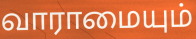
வாராமையும்